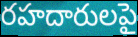
రహదారులపై